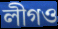
লীগও